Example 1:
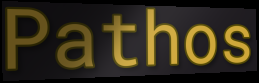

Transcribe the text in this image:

Pathos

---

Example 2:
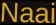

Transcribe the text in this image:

Naai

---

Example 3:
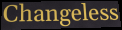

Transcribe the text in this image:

Changeless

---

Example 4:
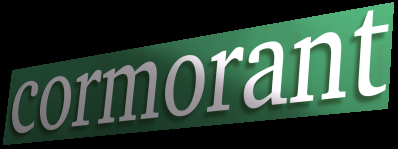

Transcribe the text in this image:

cormorant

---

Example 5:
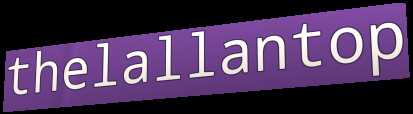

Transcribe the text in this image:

thelallantop